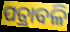
ପତ୍ରାବଳି